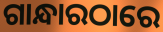
ଗାନ୍ଧାରଠାରେ